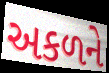
અકળને